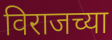
विराजच्या